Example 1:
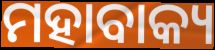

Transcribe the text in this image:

ମହାବାକ୍ୟ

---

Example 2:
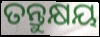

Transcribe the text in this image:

ତନ୍ତୁକ୍ଷୟ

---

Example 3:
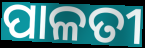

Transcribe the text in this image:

ପାଳତୀ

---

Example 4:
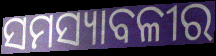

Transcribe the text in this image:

ସମସ୍ୟାବଳୀର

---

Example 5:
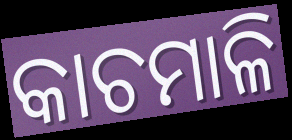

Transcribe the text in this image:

କାଚମାଳି